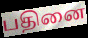
பதினை